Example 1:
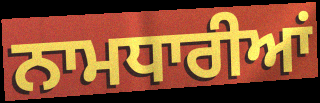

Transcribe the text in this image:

ਨਾਮਧਾਰੀਆਂ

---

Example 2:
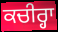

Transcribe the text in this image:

ਕਚੀਰ੍ਹਾ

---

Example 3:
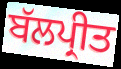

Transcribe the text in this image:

ਬੱਲਪ੍ਰੀਤ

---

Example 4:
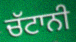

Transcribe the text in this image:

ਚੱਟਾਨੀ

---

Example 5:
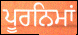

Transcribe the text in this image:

ਪੂਰਨਿਮਾਂ